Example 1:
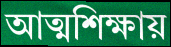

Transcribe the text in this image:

আত্মশিক্ষায়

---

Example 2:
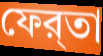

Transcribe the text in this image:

ফের্‌তা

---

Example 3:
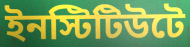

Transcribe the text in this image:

ইনস্টিটিউটে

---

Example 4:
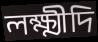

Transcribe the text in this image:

লক্ষ্মীদি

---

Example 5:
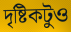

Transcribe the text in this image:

দৃষ্টিকটুও